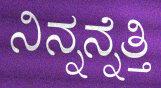
ನಿನ್ನನ್ನೆತ್ತಿ